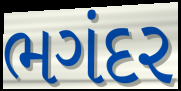
ભગંદર